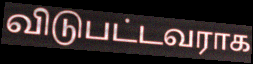
விடுபட்டவராக